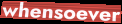
whensoever